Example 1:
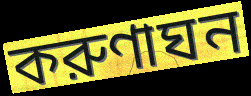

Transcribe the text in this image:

করুণাঘন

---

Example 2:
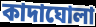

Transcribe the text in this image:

কাদাঘোলা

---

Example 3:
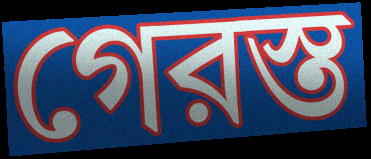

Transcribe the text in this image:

গেরস্ত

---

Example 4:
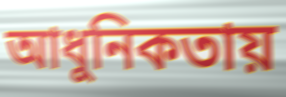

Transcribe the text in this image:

আধুনিকতায়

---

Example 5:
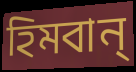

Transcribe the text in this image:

হিমবান্